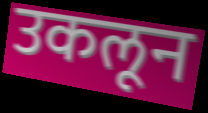
उकलून